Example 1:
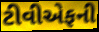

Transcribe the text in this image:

ટીવીએફની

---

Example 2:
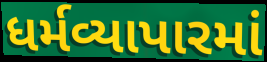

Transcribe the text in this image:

ધર્મવ્યાપારમાં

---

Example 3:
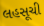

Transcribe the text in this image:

લહસૂચી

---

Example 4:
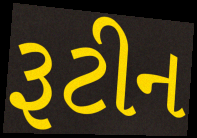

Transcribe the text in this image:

રૂટીન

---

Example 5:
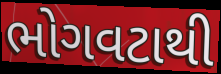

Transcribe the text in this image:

ભોગવટાથી